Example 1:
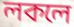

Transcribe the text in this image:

লকলে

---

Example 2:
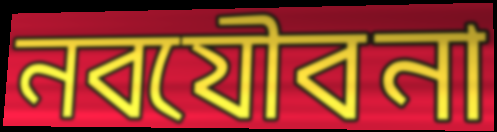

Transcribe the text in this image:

নবযৌবনা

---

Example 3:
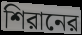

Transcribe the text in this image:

শিরানের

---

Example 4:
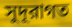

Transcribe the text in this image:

সুদূরাগত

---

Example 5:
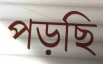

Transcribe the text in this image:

পড়ছি